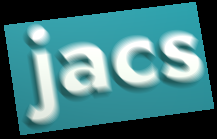
jacs